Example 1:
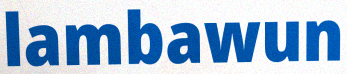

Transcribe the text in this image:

lambawun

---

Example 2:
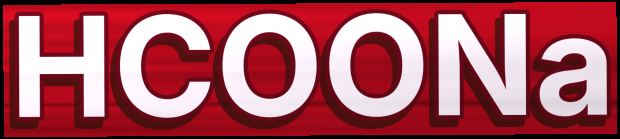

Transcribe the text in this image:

HCOONa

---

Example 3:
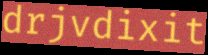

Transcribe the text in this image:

drjvdixit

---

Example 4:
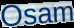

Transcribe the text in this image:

Osam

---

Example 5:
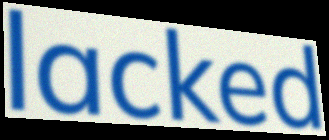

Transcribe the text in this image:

lacked